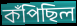
কঁপিছিল